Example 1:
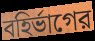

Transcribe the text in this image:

বহির্ভাগের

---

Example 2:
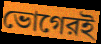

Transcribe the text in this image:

ভোগেরই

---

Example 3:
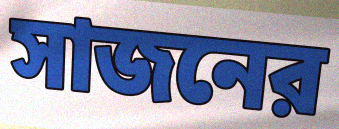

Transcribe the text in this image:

সাজনের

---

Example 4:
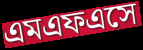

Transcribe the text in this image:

এমএফএসে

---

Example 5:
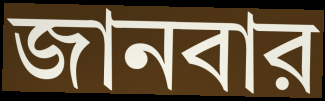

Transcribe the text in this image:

জানবার